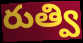
రుత్వి